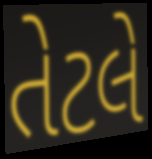
તેટલે